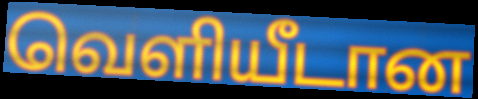
வெளியீடான